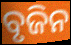
ବୃଜିନ